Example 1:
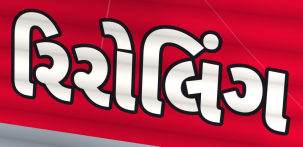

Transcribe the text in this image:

રિરોલિંગ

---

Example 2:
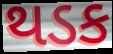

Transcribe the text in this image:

થડક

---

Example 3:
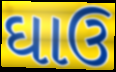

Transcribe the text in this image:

ઘાઉ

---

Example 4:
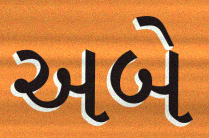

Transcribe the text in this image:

અબે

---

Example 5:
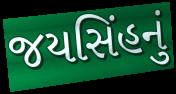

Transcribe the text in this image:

જયસિંહનું